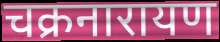
चक्रनारायण